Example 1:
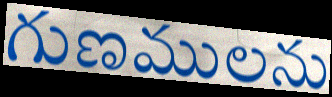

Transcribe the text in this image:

గుణములను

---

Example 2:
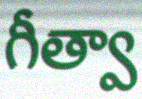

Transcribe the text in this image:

గీత్వా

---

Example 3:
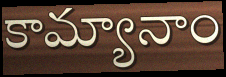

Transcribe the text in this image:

కామ్యానాం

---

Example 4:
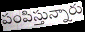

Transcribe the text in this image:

పంపిస్తున్నారు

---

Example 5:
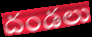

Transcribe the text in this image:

దండలు